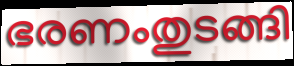
ഭരണംതുടങ്ങി